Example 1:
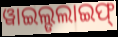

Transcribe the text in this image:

ୱାଇଲ୍ଡଲାଇଫ୍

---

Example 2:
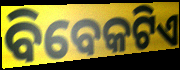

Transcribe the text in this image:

ବିବେକଟିଏ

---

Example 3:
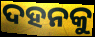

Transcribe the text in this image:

ଦହନକୁ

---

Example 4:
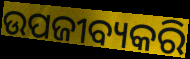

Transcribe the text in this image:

ଉପଜୀବ୍ୟକରି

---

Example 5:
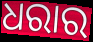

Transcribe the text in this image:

ଧରାର